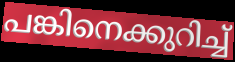
പങ്കിനെക്കുറിച്ച്